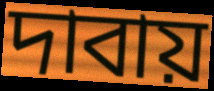
দাবায়